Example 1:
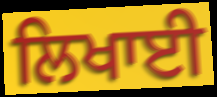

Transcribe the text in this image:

ਲਿਖਾਈ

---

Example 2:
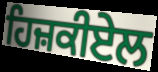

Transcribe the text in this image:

ਹਿਜ਼ਕੀਏਲ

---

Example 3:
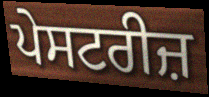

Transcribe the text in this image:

ਪੇਸਟਰੀਜ਼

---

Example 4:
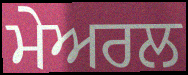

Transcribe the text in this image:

ਮੇਅਰਲ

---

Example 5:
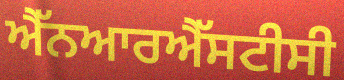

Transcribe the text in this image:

ਐੱਨਆਰਐੱਸਟੀਸੀ